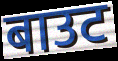
बाउट